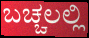
ಬಚ್ಚಲಲ್ಲಿ